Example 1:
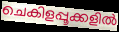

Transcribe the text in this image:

ചെകിളപ്പൂക്കളിൽ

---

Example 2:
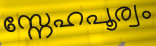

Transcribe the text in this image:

സ്നേഹപൂര്വം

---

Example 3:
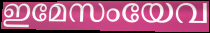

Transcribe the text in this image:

ഇമേസംയേവ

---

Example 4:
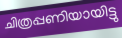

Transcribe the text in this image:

ചിത്രപ്പണിയായിട്ടു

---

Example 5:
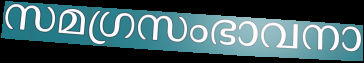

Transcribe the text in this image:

സമഗ്രസംഭാവനാ